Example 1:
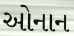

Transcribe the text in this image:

ઓનાન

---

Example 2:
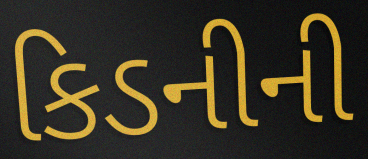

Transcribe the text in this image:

કિડનીની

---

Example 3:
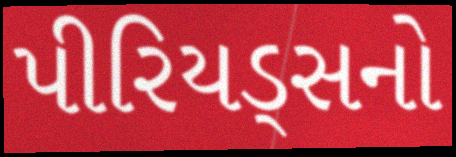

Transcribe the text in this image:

પીરિયડ્સનો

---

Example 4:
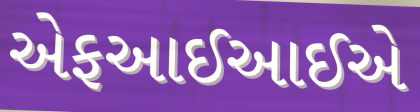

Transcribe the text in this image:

એફઆઈઆઈએ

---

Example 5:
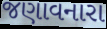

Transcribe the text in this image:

જણાવનારા